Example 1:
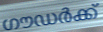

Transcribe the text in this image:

ഗൗഡർക്ക്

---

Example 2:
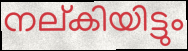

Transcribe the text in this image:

നല്കിയിട്ടും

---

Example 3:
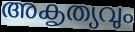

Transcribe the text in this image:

അകൃത്യവും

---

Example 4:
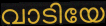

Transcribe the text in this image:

വാടിയേ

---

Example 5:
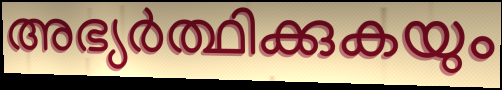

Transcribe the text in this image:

അഭ്യർത്ഥിക്കുകയും